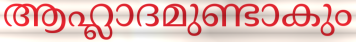
ആഹ്ലാദമുണ്ടാകും